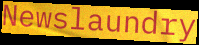
Newslaundry